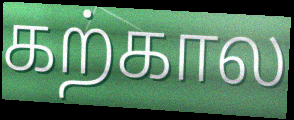
கற்கால